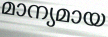
മാന്യമായ